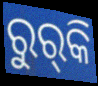
ରୁର୍‍କି